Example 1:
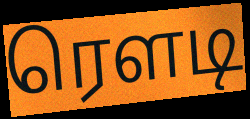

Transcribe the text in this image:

ரெளடி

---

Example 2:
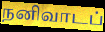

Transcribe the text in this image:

நனிவாடப்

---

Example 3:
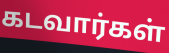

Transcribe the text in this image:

கடவார்கள்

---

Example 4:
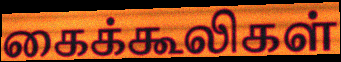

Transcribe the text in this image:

கைக்கூலிகள்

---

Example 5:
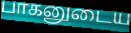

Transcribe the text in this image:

பாகனுடைய